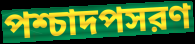
পশ্চাদপসরণ